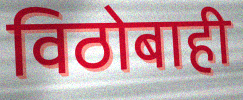
विठोबाही